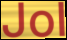
Jol